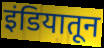
इंडियातून